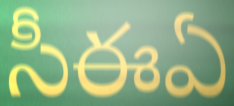
సీఈఏ